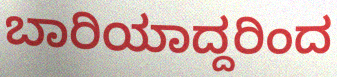
ಬಾರಿಯಾದ್ದರಿಂದ